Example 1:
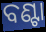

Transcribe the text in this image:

ବଣ୍ଟା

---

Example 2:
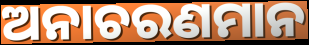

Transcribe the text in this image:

ଅନାଚରଣମାନ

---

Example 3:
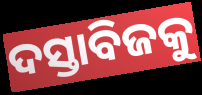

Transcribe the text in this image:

ଦସ୍ତାବିଜକୁ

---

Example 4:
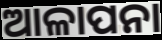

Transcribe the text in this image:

ଆଳାପନା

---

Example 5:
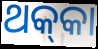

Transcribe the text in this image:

ଥକ୍‍କା